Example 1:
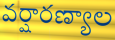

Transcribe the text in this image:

వర్షారణ్యాల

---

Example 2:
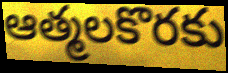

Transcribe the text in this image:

ఆత్మలకొరకు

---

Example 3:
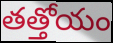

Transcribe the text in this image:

తత్తోయం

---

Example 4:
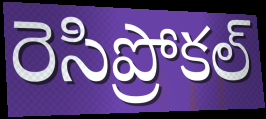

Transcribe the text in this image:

రెసిప్రోకల్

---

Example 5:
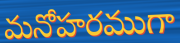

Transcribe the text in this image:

మనోహరముగా